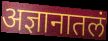
अज्ञानातलं